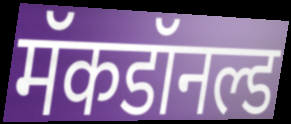
मॅकडॉनल्ड